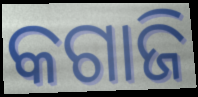
କଗାଜି